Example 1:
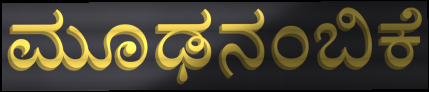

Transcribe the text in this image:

ಮೂಢನಂಬಿಕೆ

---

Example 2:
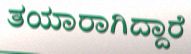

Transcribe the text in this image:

ತಯಾರಾಗಿದ್ದಾರೆ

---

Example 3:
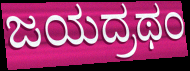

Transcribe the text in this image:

ಜಯದ್ರಥಂ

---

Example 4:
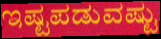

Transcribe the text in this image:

ಇಷ್ಟಪಡುವಷ್ಟು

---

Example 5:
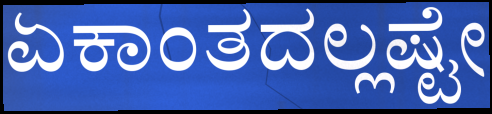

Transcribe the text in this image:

ಏಕಾಂತದಲ್ಲಷ್ಟೇ